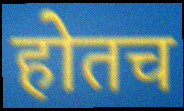
होतच